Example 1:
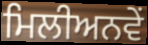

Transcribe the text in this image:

ਮਿਲੀਅਨਵੇਂ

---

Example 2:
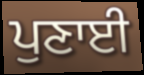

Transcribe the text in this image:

ਪੁਣਾਈ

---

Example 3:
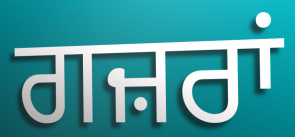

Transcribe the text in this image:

ਗਜ਼ਰਾਂ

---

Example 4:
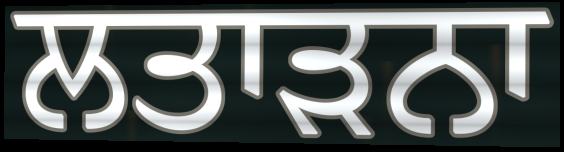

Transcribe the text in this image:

ਲਤਾੜਨਾ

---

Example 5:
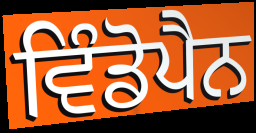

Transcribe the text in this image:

ਵਿੰਡੋਪੈਨ